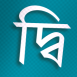
দ্বি